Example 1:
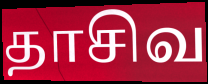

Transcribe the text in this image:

தாசிவ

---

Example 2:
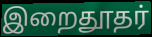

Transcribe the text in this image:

இறைதூதர்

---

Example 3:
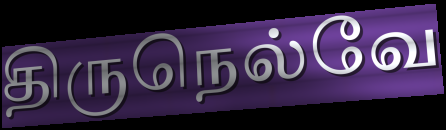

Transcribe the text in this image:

திருநெல்வே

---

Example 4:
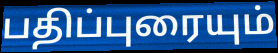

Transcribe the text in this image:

பதிப்புரையும்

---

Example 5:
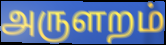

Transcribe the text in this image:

அருளறம்